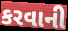
કરવાની